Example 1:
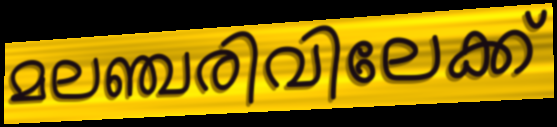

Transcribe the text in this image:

മലഞ്ചരിവിലേക്ക്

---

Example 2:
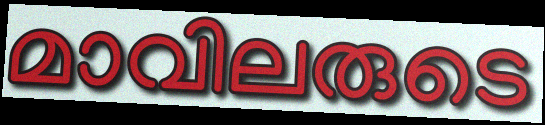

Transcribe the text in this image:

മാവിലരുടെ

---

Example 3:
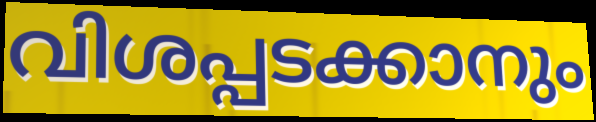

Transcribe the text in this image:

വിശപ്പടക്കാനും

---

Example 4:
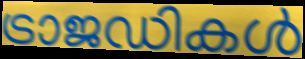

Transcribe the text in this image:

ട്രാജഡികൾ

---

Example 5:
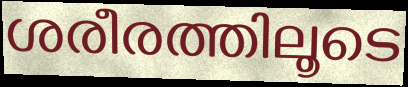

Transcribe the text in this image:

ശരീരത്തിലൂടെ